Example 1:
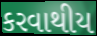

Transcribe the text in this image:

કરવાથીય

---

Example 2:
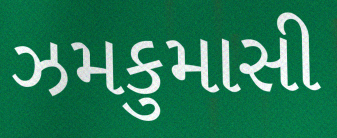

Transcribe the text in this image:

ઝમકુમાસી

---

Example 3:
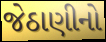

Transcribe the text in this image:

જેઠાણીનો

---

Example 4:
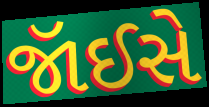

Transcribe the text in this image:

જૉઈસે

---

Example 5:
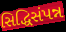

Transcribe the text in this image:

સિદ્ધિસંપન્ન